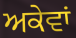
ਅਕੇਵਾਂ